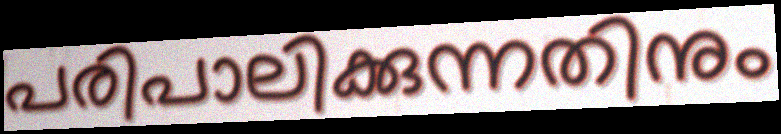
പരിപാലിക്കുന്നതിനും